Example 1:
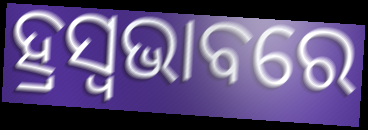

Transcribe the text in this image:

ହ୍ରସ୍ୱଭାବରେ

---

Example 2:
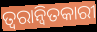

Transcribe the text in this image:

ତ୍ୱରାନ୍ୱିତକାରୀ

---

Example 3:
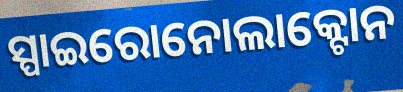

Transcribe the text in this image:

ସ୍ପାଇରୋନୋଲାକ୍ଟୋନ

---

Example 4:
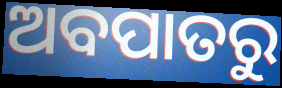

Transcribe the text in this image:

ଅବପାତରୁ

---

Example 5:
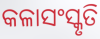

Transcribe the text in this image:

କଳାସଂସ୍କୃତି